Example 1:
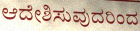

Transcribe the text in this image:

ಆದೇಶಿಸುವುದರಿಂದ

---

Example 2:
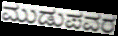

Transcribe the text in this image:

ಮುಡುಪವರ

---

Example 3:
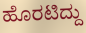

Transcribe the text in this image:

ಹೊರಟಿದ್ದು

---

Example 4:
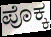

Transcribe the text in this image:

ಪೊಕ್ಕ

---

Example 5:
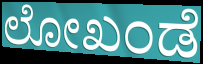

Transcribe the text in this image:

ಲೋಖಂಡೆ